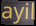
ayil